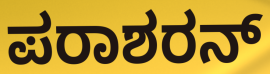
ಪರಾಶರನ್